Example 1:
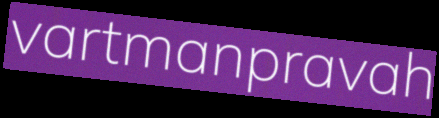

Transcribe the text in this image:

vartmanpravah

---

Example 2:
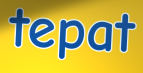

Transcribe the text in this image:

tepat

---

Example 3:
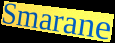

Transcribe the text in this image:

Smarane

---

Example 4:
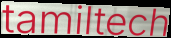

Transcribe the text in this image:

tamiltech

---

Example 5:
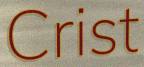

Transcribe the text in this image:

Crist